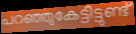
പറഞ്ഞുകേട്ടിട്ടുണ്ട്